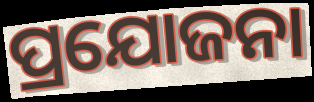
ପ୍ରଯୋଜନା